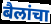
बैलांचा